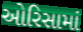
ઓરિસામાં